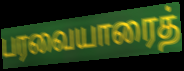
பரவையாரைத்